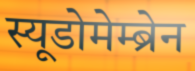
स्यूडोमेम्ब्रेन